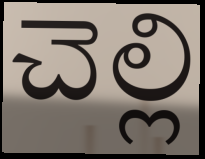
చెల్లి